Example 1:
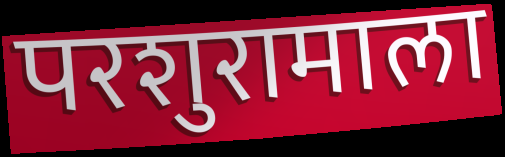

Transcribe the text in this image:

परशुरामाला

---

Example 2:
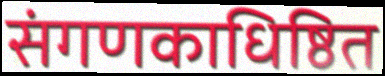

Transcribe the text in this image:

संगणकाधिष्ठित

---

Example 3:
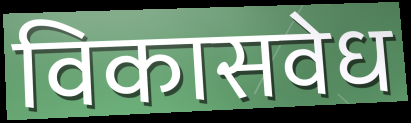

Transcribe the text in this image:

विकासवेध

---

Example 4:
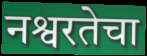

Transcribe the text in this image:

नश्वरतेचा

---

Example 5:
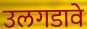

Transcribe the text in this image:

उलगडावे